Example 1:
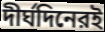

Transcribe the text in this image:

দীর্ঘদিনেরই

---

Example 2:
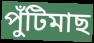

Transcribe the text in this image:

পুঁটিমাছ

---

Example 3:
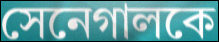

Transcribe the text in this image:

সেনেগালকে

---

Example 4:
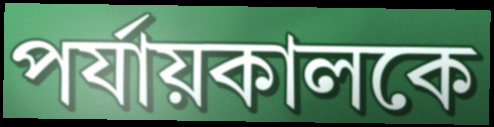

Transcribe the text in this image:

পর্যায়কালকে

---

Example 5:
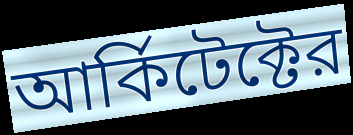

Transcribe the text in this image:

আর্কিটেক্টের